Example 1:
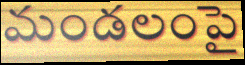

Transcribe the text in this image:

మండలంపై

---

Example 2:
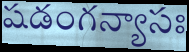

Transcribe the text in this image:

షడంగన్యాసః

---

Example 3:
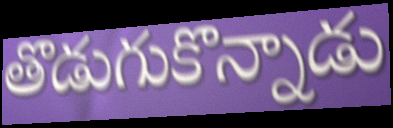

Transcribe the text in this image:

తొడుగుకొన్నాడు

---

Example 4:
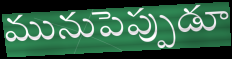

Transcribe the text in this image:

మునుపెప్పుడూ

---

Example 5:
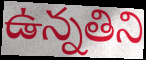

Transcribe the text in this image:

ఉన్నతిని